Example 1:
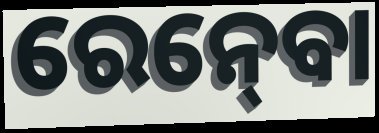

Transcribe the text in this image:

ରେନ୍‍ବୋ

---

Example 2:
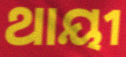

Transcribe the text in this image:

ଥାୟୀ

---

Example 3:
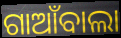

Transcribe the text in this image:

ଗାଆଁବାଲା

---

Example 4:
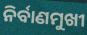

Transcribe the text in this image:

ନିର୍ବାଣମୁଖୀ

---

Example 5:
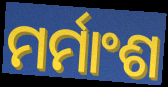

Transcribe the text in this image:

ମର୍ମାଂଶ